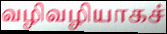
வழிவழியாகச்